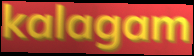
kalagam